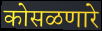
कोसळणारे